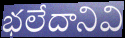
భలేదానివి